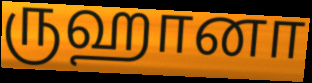
ருஹானா